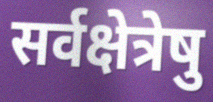
सर्वक्षेत्रेषु